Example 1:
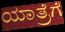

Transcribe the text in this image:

ಯಾತ್ರೆಗೆ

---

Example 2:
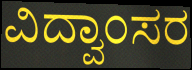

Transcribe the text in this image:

ವಿದ್ವಾಂಸರ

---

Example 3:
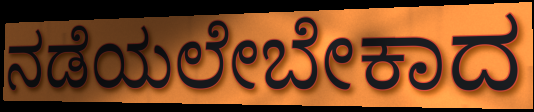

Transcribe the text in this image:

ನಡೆಯಲೇಬೇಕಾದ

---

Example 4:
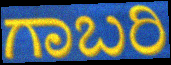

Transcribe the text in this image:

ಗಾಬರಿ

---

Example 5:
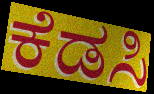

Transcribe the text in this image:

ಕೆಡಸಿ